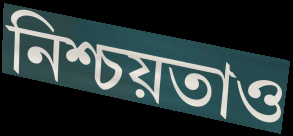
নিশ্চয়তাও